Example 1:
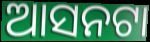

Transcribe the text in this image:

ଆସନଟା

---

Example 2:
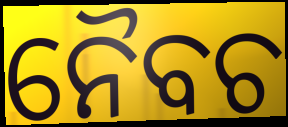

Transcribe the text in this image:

ନୈବଚ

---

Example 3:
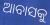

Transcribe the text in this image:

ଆବାସକୁ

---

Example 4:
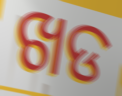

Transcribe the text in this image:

ଖଡ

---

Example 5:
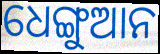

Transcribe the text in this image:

ଧେଙ୍ଗୁଆନ